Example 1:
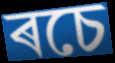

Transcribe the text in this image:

ৰচে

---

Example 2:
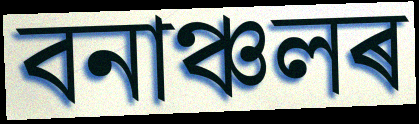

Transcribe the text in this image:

বনাঞ্চলৰ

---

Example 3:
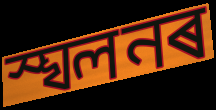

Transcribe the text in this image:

স্খলনৰ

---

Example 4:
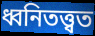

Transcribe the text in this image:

ধ্বনিতত্ত্বত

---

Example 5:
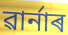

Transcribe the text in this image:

ৱাৰ্নাৰ